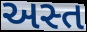
અસ્ત